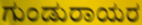
ಗುಂಡುರಾಯರ